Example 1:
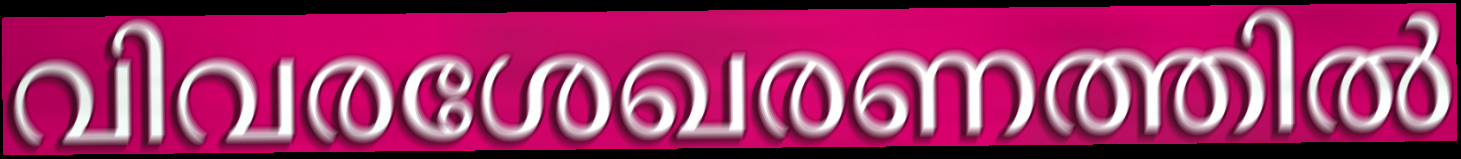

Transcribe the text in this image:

വിവരശേഖരണത്തിൽ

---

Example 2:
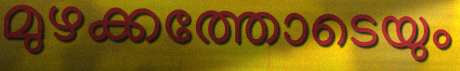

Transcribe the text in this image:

മുഴക്കത്തോടെയും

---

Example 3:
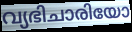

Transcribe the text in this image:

വ്യഭിചാരിയോ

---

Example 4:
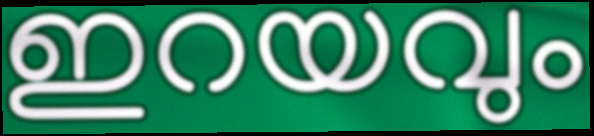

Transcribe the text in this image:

ഇറയവും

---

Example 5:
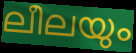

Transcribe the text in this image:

ലീലയും